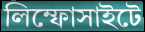
লিম্ফোসাইটে